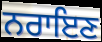
ਨਰਾਇਣ